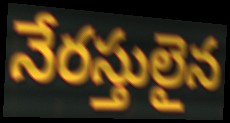
నేరస్తులైన